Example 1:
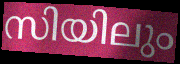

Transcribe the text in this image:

സിയിലും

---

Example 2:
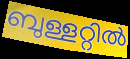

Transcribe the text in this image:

ബുള്ളറ്റിൽ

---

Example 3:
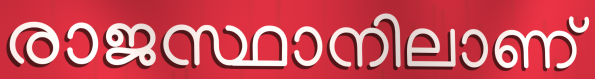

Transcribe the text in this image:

രാജസ്ഥാനിലാണ്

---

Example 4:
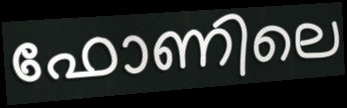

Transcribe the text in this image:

ഫോണിലെ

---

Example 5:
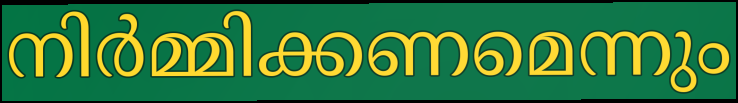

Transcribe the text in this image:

നിർമ്മിക്കണമെന്നും